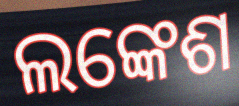
ଲଙ୍କେଶ